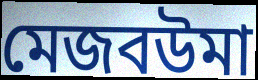
মেজবউমা